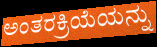
ಅಂತರಕ್ರಿಯೆಯನ್ನು